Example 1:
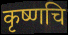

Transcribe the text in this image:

कृष्णचि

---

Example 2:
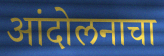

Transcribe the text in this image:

आंदोलनाचा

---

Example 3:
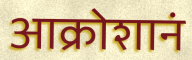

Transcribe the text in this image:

आक्रोशानं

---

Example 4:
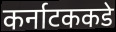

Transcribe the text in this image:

कर्नाटककडे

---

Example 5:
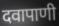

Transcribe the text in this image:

दवापाणी